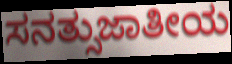
ಸನತ್ಸುಜಾತೀಯ